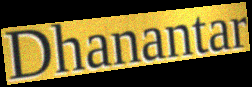
Dhanantar